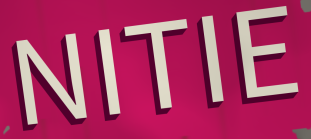
NITIE